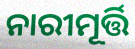
ନାରୀମୂର୍ତ୍ତି